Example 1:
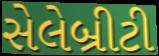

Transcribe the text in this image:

સેલેબ્રીટી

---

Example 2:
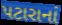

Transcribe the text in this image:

પટારાનાં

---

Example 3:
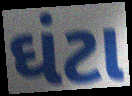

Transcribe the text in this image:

ઘંટા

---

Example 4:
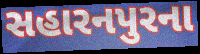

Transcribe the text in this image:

સહારનપુરના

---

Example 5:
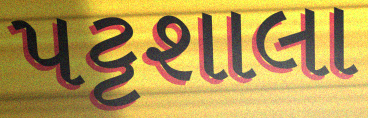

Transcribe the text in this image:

પટ્ટશાલા